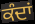
ਕੰਦਾਂ